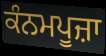
ਕੰਨਮਪੂਜ਼ਾ